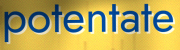
potentate